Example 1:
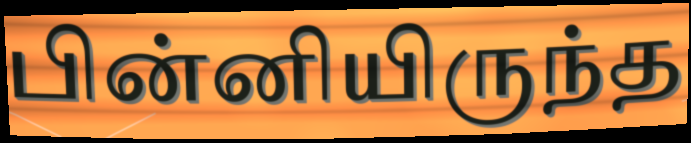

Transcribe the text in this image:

பின்னியிருந்த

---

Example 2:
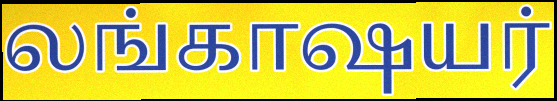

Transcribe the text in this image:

லங்காஷயர்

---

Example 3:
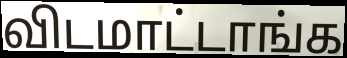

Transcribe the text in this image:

விடமாட்டாங்க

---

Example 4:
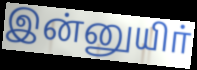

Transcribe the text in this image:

இன்னுயிர்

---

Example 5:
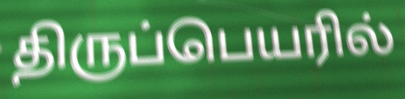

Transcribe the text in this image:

திருப்பெயரில்